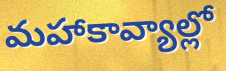
మహాకావ్యాల్లో